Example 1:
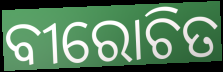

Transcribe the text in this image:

ବୀରୋଚିତ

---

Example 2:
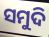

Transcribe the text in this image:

ସମୁଦି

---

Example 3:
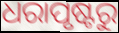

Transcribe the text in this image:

ଧରାପୃଷ୍ଟରୁ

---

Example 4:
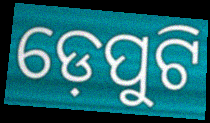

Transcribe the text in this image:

ଡ଼େପୁଟି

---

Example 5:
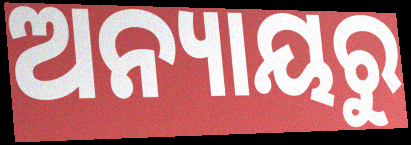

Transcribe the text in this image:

ଅନ୍ୟାୟରୁ